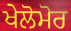
ਖੇਲੋਮੋਰ